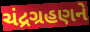
ચંદ્રગ્રહણને